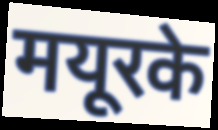
मयूरके